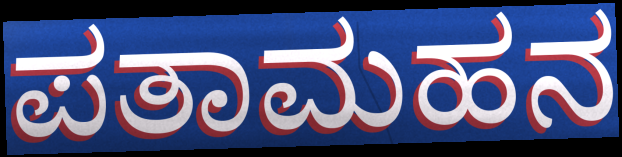
ಪತಾಮಹನ